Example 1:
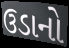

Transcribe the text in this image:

ઉડાનો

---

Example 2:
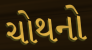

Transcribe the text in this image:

ચોથનો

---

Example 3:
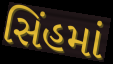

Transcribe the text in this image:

સિંહમાં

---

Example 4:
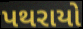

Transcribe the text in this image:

પથરાયો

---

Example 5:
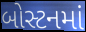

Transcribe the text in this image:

બોસ્ટનમાં